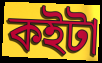
কইটা